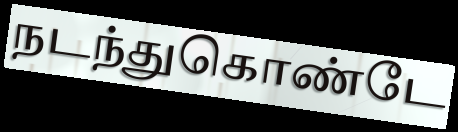
நடந்துகொண்டே